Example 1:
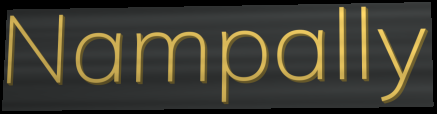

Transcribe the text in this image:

Nampally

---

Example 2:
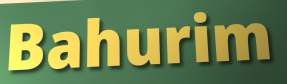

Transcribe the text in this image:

Bahurim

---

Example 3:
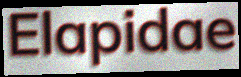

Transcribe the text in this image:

Elapidae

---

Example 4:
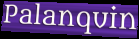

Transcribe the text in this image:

Palanquin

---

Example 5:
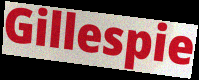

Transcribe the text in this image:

Gillespie